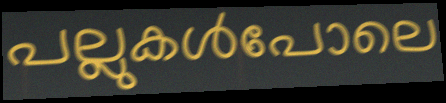
പല്ലുകൾപോലെ